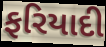
ફરિયાદી